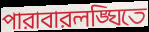
পারাবারলঙ্ঘিতে